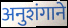
अनुशंगाने